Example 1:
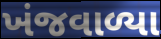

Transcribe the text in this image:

ખંજવાળ્યા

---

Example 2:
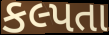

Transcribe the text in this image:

કલ્પતા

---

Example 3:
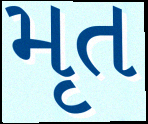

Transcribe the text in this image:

મૃત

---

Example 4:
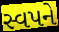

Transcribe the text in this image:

સ્વપને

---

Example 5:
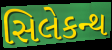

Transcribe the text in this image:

સિલેકન્થ